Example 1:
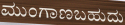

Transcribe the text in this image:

ಮುಂಗಾಣಬಹುದು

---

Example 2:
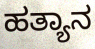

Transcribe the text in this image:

ಹತ್ಯಾನ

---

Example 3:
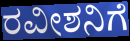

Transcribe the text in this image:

ರವೀಶನಿಗೆ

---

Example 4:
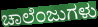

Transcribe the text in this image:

ಚಾಲೆಂಜುಗಳು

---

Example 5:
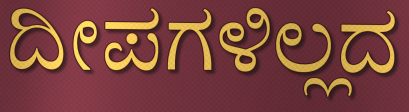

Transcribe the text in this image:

ದೀಪಗಳಿಲ್ಲದ